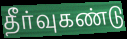
தீர்வுகண்டு